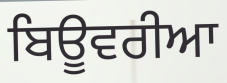
ਬਿਊਵਰੀਆ